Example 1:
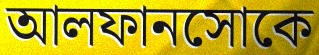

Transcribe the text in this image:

আলফানসোকে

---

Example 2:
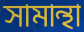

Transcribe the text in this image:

সামান্থা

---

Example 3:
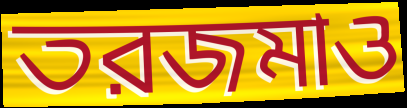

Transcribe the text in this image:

তরজমাও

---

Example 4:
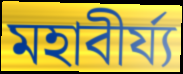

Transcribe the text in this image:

মহাবীর্য্য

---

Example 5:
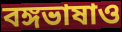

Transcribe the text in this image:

বঙ্গভাষাও